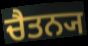
ਚੈਤਨ੍ਯ